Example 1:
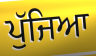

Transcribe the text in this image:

ਪੁੱਜਿਆ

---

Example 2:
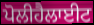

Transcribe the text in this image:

ਪੋਲੀਹੈਲਾਈਟ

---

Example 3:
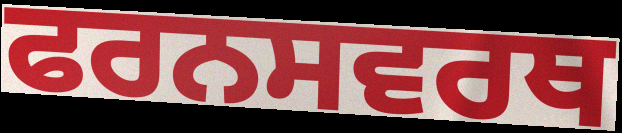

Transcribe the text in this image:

ਫਰਨਸਵਰਥ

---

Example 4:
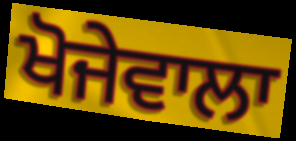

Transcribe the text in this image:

ਖੋਜੇਵਾਲਾ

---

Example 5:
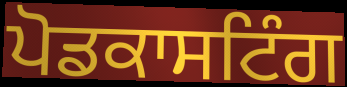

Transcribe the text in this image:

ਪੋਡਕਾਸਟਿੰਗ